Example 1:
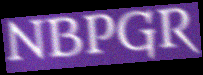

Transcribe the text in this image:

NBPGR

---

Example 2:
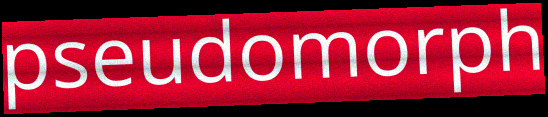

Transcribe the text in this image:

pseudomorph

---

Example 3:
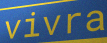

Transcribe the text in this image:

vivra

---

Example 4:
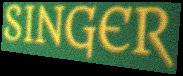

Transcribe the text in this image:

SINGER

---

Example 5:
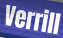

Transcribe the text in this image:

Verrill